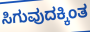
ಸಿಗುವುದಕ್ಕಿಂತ